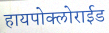
हायपोक्लोराईड